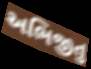
અભિજીતુ